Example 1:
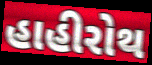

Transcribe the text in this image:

હાહીરોથ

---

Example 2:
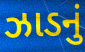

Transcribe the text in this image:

ઝાડનું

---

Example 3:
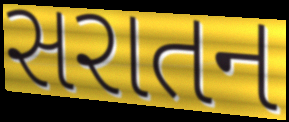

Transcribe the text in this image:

સરાતન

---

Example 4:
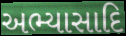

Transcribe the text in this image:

અભ્યાસાદિ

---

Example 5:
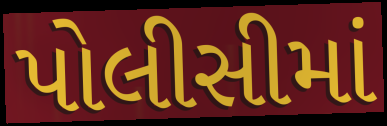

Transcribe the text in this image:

પોલીસીમાં